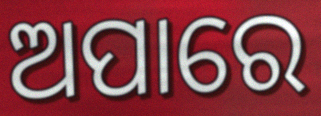
ଅପାରେ